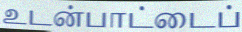
உடன்பாட்டைப்